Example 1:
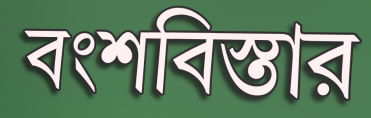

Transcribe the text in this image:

বংশবিস্তার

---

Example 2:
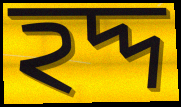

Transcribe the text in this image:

হদ্দ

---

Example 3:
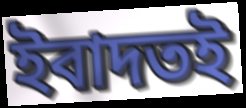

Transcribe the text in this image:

ইবাদতই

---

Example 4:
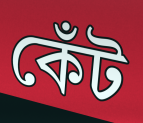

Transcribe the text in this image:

কেঁট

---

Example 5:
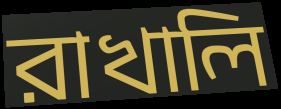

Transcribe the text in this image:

রাখালি